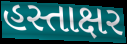
હસ્તાક્ષર